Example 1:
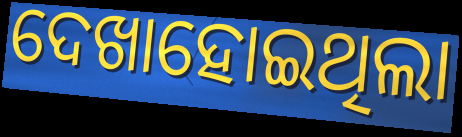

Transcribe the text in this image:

ଦେଖାହୋଇଥିଲା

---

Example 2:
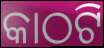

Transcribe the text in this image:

କାଠଟି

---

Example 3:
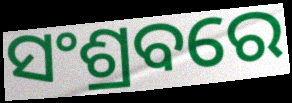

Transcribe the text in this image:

ସଂଶ୍ରବରେ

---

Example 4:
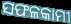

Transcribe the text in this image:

ସଫଳକାମୀ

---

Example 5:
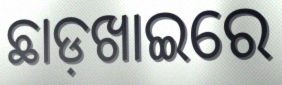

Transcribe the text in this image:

ଛାଡ଼ଖାଇରେ